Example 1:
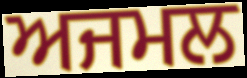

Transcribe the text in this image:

ਅਜਮਲ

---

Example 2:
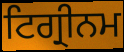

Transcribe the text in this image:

ਟਿਗ੍ਰੀਨਮ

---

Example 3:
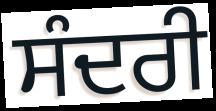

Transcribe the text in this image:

ਸੰਦਰੀ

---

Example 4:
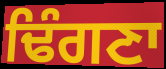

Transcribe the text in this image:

ਢਿੰਗਣਾ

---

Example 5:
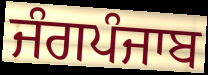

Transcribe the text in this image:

ਜੰਗਪੰਜਾਬ